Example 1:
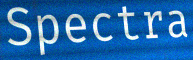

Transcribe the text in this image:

Spectra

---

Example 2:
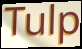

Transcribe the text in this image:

Tulp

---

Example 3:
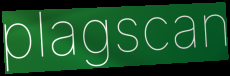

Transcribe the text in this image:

plagscan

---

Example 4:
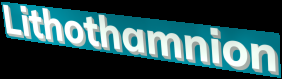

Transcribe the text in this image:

Lithothamnion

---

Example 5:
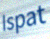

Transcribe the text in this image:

Ispat